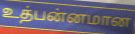
உத்பன்னமான